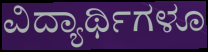
ವಿದ್ಯಾರ್ಥಿಗಳೂ